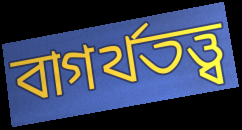
বাগর্থতত্ত্ব